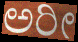
ಅರೀ